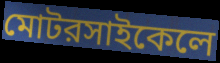
মোটরসাইকেলে